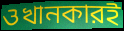
ওখানকারই